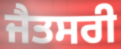
ਜੈਤਸਰੀ